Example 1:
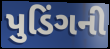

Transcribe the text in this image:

પુડિંગની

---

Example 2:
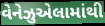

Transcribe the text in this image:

વેનેઝુએલામાંથી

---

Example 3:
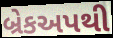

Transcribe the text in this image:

બ્રેકઅપથી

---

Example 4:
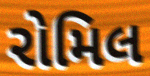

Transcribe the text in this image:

રોમિલ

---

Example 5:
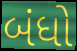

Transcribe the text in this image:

બંધો